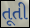
તૂતી